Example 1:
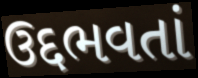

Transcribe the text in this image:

ઉદ્દભવતાં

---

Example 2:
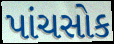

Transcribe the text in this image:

પાંચસોક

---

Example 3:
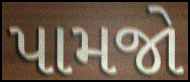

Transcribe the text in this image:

પામજો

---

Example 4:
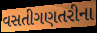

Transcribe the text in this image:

વસતીગણતરીના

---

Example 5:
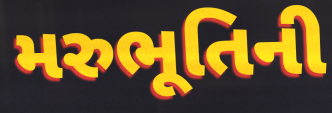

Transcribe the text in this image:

મરુભૂતિની